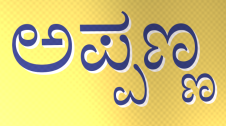
ಅಪ್ಪಣ್ಣ